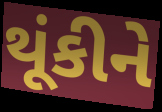
થૂંકીને